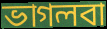
ভাগলবা